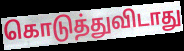
கொடுத்துவிடாது